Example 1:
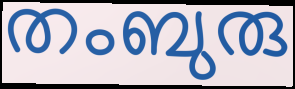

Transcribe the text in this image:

തംബുരു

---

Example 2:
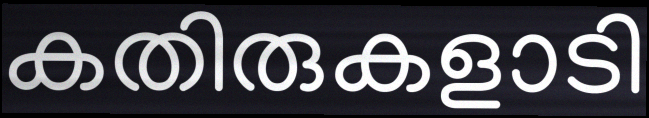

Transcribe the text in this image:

കതിരുകളാടി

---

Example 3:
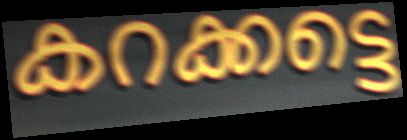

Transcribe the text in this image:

കറക്കട്ടെ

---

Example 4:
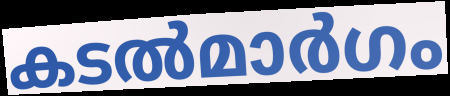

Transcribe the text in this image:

കടൽമാർഗം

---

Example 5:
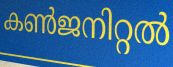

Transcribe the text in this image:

കൺജനിറ്റൽ